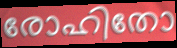
രോഹിതോ